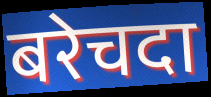
बरेचदा